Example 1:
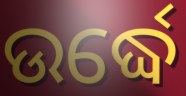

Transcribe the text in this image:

ଉର୍ଦ୍ଧେ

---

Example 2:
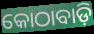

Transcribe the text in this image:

କୋଠାବାଡ଼ି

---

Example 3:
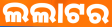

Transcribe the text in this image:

ଲଲାଟର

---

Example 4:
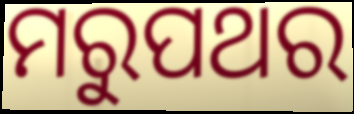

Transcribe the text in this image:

ମରୁପଥର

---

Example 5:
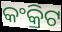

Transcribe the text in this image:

କଂକ୍ରିଟ